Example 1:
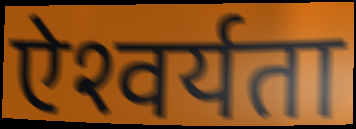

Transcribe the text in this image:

ऐश्वर्यता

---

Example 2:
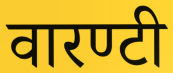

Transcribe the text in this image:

वारण्टी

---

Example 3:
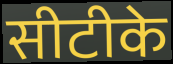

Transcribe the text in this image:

सीटीके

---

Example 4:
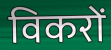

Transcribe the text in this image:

विकरों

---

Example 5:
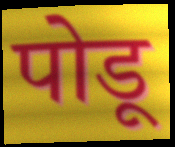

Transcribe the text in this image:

पोडू